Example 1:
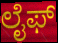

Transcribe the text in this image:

ಲೈಫ್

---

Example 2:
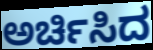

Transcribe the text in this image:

ಅರ್ಚಿಸಿದ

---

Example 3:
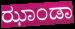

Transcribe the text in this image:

ಝಾಂಡಾ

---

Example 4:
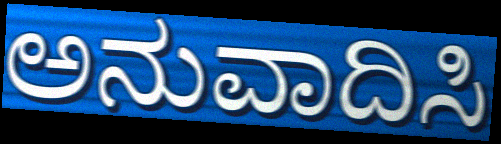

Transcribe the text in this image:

ಅನುವಾದಿಸಿ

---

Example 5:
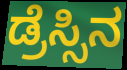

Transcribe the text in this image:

ಡ್ರೆಸ್ಸಿನ